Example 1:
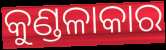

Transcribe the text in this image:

କୁଣ୍ଡଳାକାର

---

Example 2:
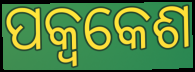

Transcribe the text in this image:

ପକ୍ଵକେଶ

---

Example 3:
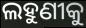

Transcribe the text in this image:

ଲହୁଣୀକୁ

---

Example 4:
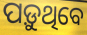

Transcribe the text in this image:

ପଡ଼ୁଥିବେ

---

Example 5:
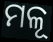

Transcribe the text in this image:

ମଳୂ